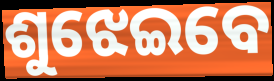
ଶୁଝେଇବେ